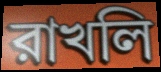
রাখলি